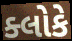
ક્લોકે